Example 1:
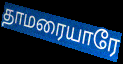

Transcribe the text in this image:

தாமரையாரே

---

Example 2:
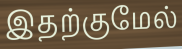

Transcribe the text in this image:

இதற்குமேல்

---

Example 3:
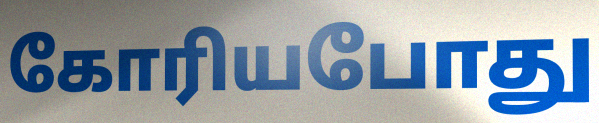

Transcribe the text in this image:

கோரியபோது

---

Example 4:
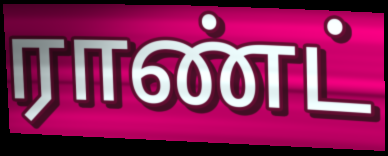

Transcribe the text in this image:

ராண்ட்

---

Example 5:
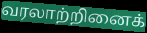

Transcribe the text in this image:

வரலாற்றினைக்